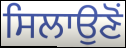
ਸਿਲਾਉਣੋਂ